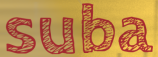
suba